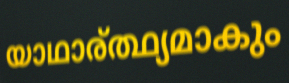
യാഥാര്ത്ഥ്യമാകും